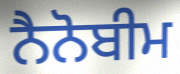
ਨੈਨੋਬੀਮ